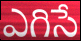
ఎగిసే